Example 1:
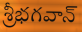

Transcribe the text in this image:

శ్రీభగవాన్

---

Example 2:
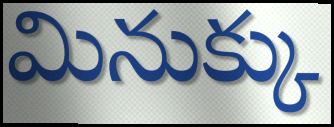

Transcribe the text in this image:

మినుక్కు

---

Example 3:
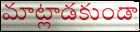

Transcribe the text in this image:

మాట్లాడకుండా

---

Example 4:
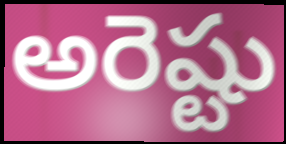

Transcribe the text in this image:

అరెష్టు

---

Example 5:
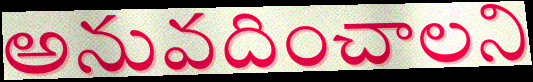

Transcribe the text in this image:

అనువదించాలని